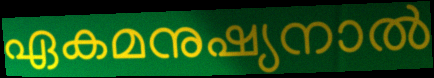
ഏകമനുഷ്യനാൽ